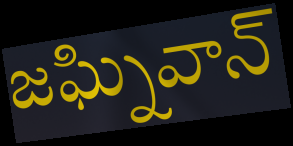
జఘ్నివాన్